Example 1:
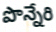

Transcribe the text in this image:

పొన్నేరి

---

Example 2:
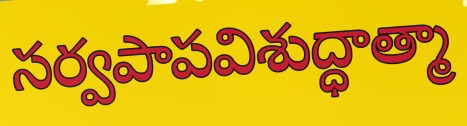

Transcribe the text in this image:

సర్వపాపవిశుద్ధాత్మా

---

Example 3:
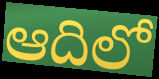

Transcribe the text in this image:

ఆదిలో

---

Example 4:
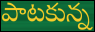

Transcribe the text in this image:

పాటకున్న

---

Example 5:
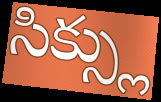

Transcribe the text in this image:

సిక్స్లు